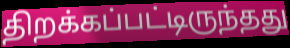
திறக்கப்பட்டிருந்தது